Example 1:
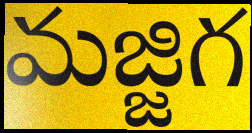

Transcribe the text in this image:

మజ్జిగ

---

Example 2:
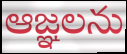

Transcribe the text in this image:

ఆజ్ఞలను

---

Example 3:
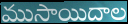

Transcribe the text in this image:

ముసాయిదాల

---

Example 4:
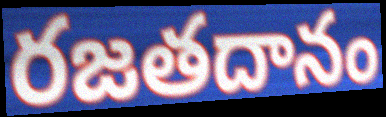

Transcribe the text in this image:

రజతదానం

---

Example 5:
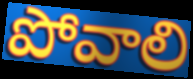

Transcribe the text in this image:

పోవాలి